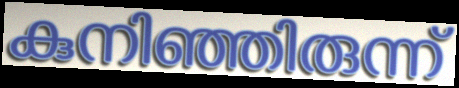
കുനിഞ്ഞിരുന്ന്